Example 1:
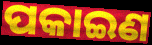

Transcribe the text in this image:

ପକାଇଣ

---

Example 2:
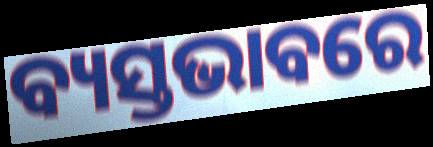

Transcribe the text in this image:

ବ୍ୟସ୍ତଭାବରେ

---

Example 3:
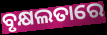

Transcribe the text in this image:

ବୃକ୍ଷଲତାରେ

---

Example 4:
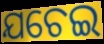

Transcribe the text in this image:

ଯଚେଇ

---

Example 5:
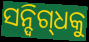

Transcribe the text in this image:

ସନ୍ଦିଗ୍‌ଧକୁ